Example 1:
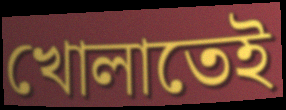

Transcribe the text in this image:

খোলাতেই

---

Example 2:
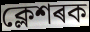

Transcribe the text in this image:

ক্লেশৰক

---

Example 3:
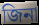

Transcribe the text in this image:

জিনা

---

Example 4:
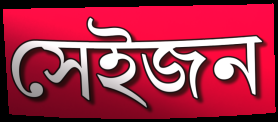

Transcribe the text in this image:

সেইজন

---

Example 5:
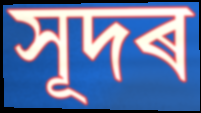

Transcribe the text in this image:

সূদৰ